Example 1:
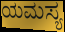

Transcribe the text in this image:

ಯಮಸ್ಯ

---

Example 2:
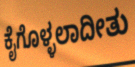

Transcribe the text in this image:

ಕೈಗೊಳ್ಳಲಾದೀತು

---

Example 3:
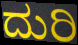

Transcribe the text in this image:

ದುರಿ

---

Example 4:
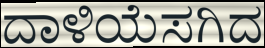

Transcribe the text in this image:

ದಾಳಿಯೆಸಗಿದ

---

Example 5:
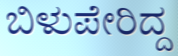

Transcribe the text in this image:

ಬಿಳುಪೇರಿದ್ದ